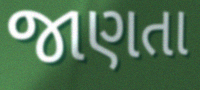
જાણતા